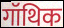
गॉथिक